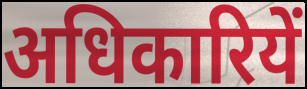
अधिकारियें